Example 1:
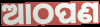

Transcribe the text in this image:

ଆଠପଣ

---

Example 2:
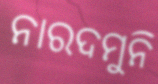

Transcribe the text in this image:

ନାରଦମୁନି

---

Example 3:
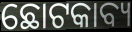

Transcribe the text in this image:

ଛୋଟକାବ୍ୟ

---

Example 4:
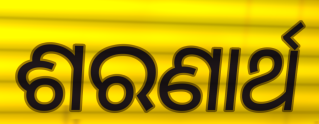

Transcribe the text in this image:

ଶରଣାର୍ଥ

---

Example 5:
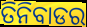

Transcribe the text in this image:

ତିନିବାଡର